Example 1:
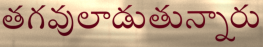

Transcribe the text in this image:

తగవులాడుతున్నారు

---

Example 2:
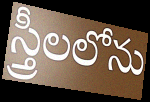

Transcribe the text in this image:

స్త్రీలలోను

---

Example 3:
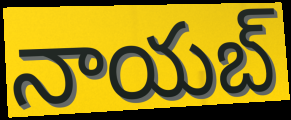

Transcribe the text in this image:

నాయబ్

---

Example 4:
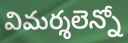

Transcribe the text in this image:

విమర్శలెన్నో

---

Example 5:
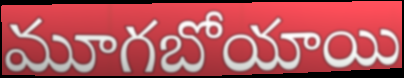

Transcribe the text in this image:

మూగబోయాయి